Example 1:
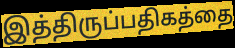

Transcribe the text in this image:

இத்திருப்பதிகத்தை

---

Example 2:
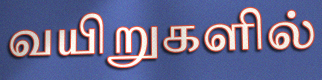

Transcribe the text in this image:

வயிறுகளில்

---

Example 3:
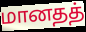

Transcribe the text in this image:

மானதத்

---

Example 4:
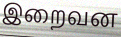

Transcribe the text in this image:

இறைவன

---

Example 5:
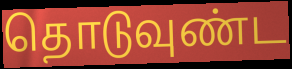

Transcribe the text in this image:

தொடுவுண்ட